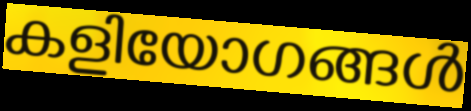
കളിയോഗങ്ങൾ